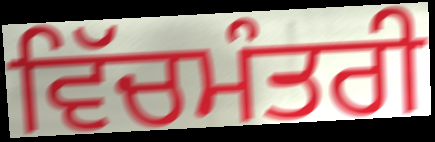
ਵਿੱਚਮੰਤਰੀ